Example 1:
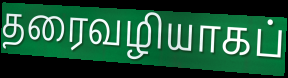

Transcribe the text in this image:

தரைவழியாகப்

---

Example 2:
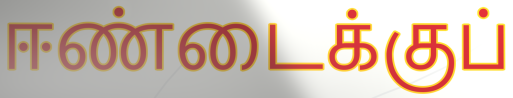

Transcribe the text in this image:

ஈண்டைக்குப்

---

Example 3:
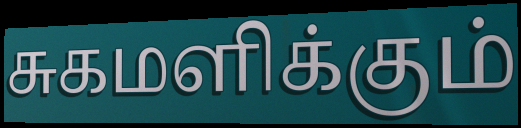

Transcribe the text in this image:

சுகமளிக்கும்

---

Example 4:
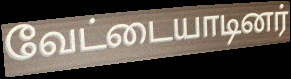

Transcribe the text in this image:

வேட்டையாடினர்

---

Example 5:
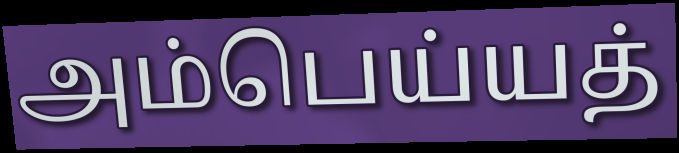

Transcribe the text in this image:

அம்பெய்யத்